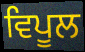
ਵਿਪੂਲ